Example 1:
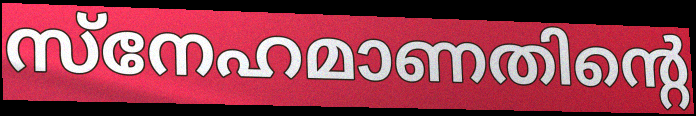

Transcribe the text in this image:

സ്നേഹമാണതിന്റെ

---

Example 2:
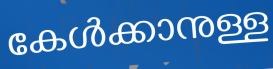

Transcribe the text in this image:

കേൾക്കാനുള്ള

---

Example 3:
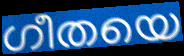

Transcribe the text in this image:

ഗീതയെ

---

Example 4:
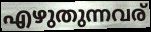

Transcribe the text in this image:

എഴുതുന്നവര്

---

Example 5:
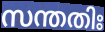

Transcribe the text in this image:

സന്തതിഃ